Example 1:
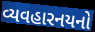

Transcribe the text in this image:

વ્યવહારનયનો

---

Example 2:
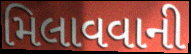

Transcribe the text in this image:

મિલાવવાની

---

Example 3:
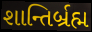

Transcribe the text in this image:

શાન્તિર્બ્રહ્મ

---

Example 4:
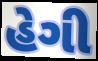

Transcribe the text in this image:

હેગી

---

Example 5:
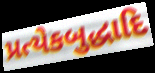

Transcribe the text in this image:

પ્રત્યેકબુદ્ધાદિ